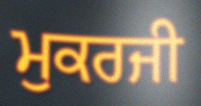
ਮੁਕਰਜੀ